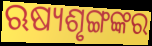
ଋଷ୍ୟଶୃଙ୍ଗଙ୍କର